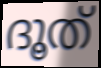
ദൂത്